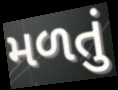
મળતું